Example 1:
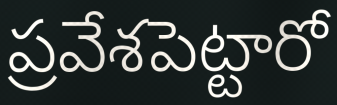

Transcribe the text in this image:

ప్రవేశపెట్టారో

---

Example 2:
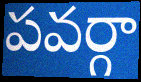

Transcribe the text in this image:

పవర్గా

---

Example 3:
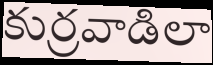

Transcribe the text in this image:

కుర్రవాడిలా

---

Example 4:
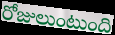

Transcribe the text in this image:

రోజులుంటుంది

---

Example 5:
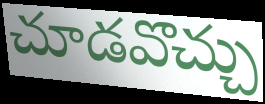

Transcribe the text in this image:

చూడవొచ్చు